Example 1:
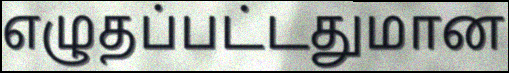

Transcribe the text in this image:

எழுதப்பட்டதுமான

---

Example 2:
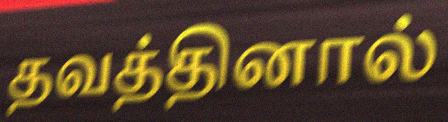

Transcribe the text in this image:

தவத்தினால்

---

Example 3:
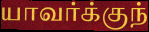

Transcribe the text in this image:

யாவர்க்குந்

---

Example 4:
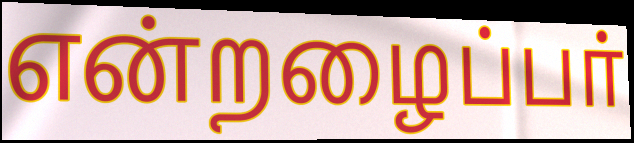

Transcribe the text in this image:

என்றழைப்பர்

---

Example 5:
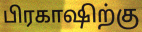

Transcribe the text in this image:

பிரகாஷிற்கு